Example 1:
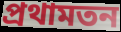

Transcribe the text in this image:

প্রথামতন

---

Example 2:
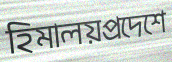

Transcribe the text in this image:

হিমালয়প্রদেশে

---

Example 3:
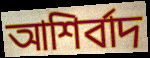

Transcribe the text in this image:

আশির্বাদ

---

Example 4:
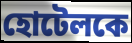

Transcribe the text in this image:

হোটেলকে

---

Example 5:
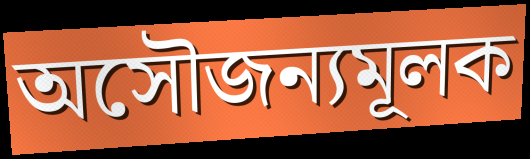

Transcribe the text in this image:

অসৌজন্যমূলক